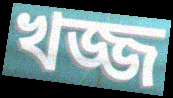
খজ্জ